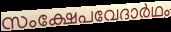
സംക്ഷേപവേദാർഥം